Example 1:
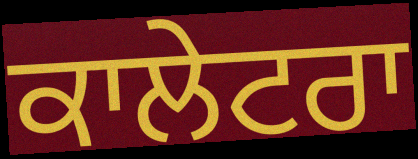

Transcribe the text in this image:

ਕਾਲੇਟਰਾ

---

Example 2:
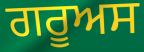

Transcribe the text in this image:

ਗਰੂਅਸ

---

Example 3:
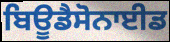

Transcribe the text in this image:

ਬਿਊਡੈਸੋਨਾਈਡ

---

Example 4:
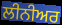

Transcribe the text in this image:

ਲੀਨੀਅਰ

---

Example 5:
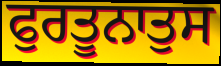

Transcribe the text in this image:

ਫੁਰਤੂਨਾਤੁਸ